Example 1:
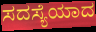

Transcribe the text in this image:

ಸದಸ್ಯೆಯಾದ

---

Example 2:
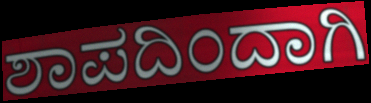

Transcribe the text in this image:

ಶಾಪದಿಂದಾಗಿ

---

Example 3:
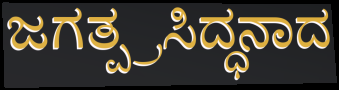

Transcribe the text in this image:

ಜಗತ್ಪ್ರಸಿದ್ಧನಾದ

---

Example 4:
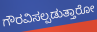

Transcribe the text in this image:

ಗೌರವಿಸಲ್ಪಡುತ್ತಾರೋ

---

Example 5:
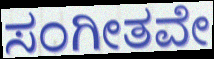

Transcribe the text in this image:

ಸಂಗೀತವೇ